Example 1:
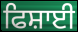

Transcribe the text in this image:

ਫਿਸ਼ਾਈ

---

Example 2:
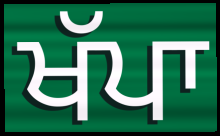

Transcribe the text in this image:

ਖੱਪਾ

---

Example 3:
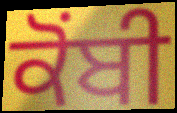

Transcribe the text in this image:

ਕੋਂਬੀ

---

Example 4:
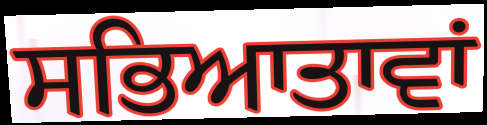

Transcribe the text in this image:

ਸਭਿਆਤਾਵਾਂ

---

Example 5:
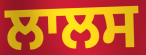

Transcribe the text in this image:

ਲਾਲਸ